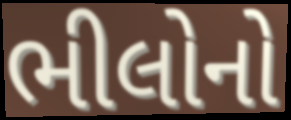
ભીલોનો